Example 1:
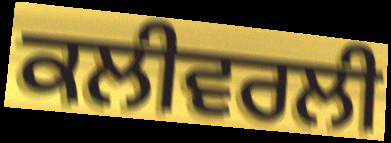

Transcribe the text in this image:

ਕਲੀਵਰਲੀ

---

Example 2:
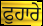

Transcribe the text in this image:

ਫੁਹਾਰੇ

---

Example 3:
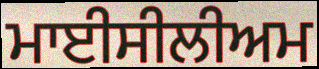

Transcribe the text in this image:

ਮਾਈਸੀਲੀਅਮ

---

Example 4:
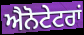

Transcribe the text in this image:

ਐਨੋਟੇਟਰਾਂ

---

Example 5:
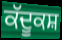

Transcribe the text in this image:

ਕੱਦੂਕਸ਼